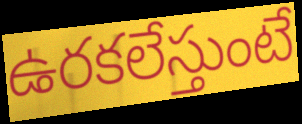
ఉరకలేస్తుంటే